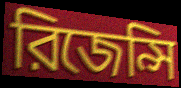
রিজেন্সি